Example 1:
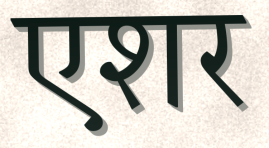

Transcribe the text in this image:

एशर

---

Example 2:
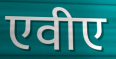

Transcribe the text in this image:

एवीए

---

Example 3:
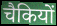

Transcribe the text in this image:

चैकियों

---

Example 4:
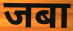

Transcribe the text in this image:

जबा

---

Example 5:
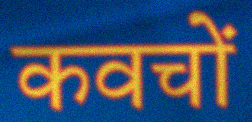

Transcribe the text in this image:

कवचों